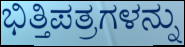
ಭಿತ್ತಿಪತ್ರಗಳನ್ನು